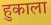
हुकाला